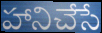
హానిచేసే